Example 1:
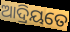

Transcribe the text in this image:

ଆଦ୍ରିୟତେ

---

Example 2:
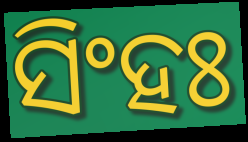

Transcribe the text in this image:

ସିଂହଃ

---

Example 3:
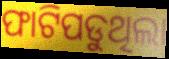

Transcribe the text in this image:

ଫାଟିପଡୁଥିଲା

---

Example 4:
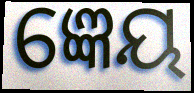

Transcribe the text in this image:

ଜ୍ଞେୟ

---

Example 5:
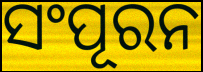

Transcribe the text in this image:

ସଂପୂରନ